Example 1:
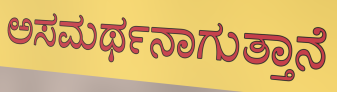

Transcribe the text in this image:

ಅಸಮರ್ಥನಾಗುತ್ತಾನೆ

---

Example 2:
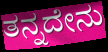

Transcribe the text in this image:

ತನ್ನದೇನು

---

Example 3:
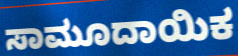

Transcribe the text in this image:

ಸಾಮೂದಾಯಿಕ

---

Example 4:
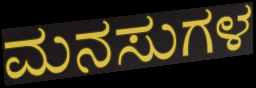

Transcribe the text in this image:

ಮನಸುಗಳ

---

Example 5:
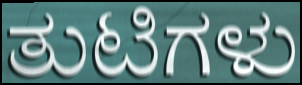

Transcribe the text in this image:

ತುಟಿಗಳು